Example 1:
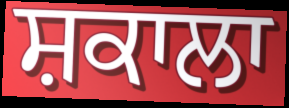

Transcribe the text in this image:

ਸ਼ਕਾਲਾ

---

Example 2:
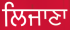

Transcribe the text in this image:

ਲਿਜਾਣਾ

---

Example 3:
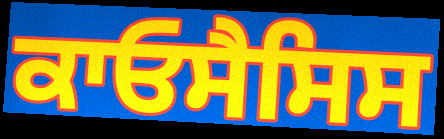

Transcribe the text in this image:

ਕਾਓਸੈਸਿਸ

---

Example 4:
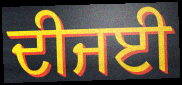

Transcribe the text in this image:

ਦੀਜਈ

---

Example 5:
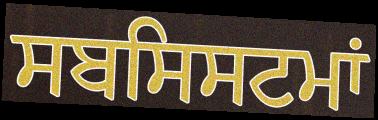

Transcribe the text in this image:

ਸਬਸਿਸਟਮਾਂ